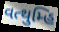
વત્થુમ્હિ